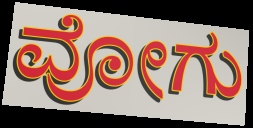
ವೋಗು